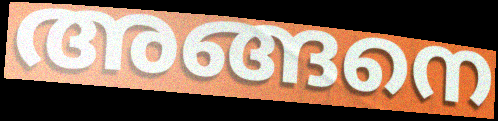
അങ്ങനെ